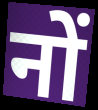
नों